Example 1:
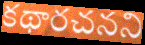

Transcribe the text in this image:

కథారచనని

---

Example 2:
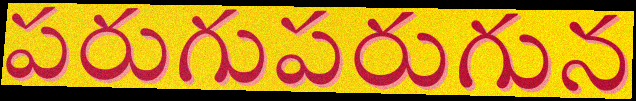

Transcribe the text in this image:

పరుగుపరుగున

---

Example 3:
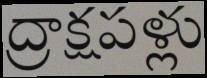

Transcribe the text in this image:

ద్రాక్షపళ్లు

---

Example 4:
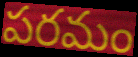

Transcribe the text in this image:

పరమం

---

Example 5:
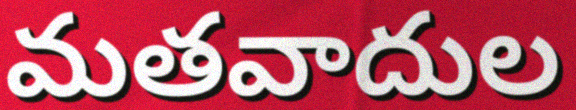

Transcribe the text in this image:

మతవాదుల